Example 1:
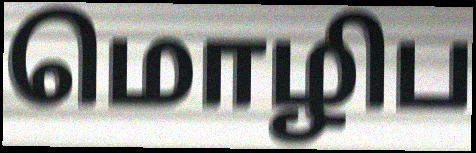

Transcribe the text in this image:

மொழிப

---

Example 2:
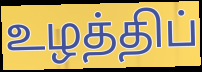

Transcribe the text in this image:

உழத்திப்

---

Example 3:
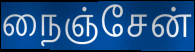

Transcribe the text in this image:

நைஞ்சேன்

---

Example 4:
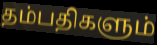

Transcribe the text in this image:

தம்பதிகளும்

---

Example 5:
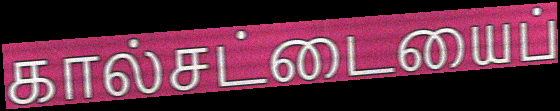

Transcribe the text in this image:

கால்சட்டையைப்